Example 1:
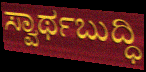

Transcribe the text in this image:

ಸ್ವಾರ್ಥಬುದ್ಧಿ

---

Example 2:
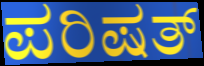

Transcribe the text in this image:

ಪರಿಷತ್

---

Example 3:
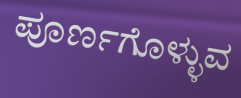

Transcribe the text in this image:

ಪೂರ್ಣಗೊಳ್ಳುವ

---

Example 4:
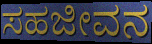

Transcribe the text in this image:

ಸಹಜೀವನ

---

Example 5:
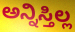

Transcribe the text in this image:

ಅನ್ನಿಸ್ತಿಲ್ಲ